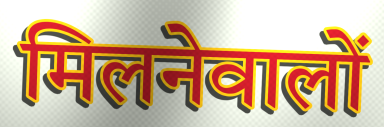
मिलनेवालों